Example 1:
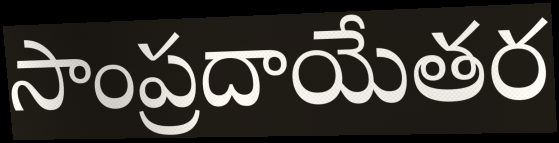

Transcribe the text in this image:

సాంప్రదాయేతర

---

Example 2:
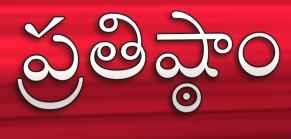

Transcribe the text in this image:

ప్రతిష్ఠాం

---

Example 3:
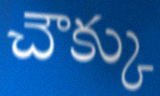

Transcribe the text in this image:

చౌక్కు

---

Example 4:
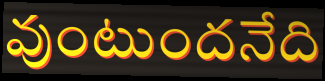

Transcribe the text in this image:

వుంటుందనేది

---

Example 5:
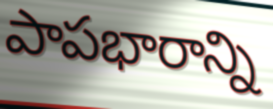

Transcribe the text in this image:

పాపభారాన్ని